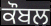
ਕੌਬਲ